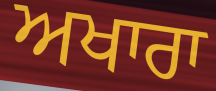
ਅਖਾਰਾ